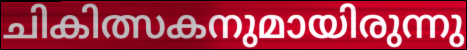
ചികിത്സകനുമായിരുന്നു